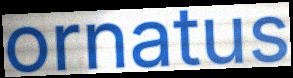
ornatus